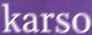
karso